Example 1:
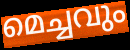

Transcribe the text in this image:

മെച്ചവും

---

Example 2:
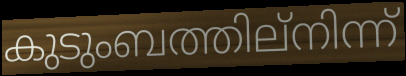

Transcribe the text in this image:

കുടുംബത്തില്നിന്ന്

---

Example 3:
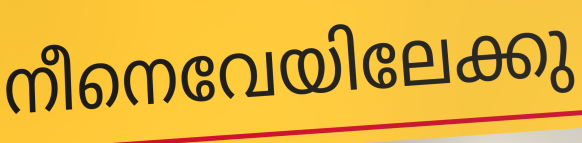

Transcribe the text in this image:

നീനെവേയിലേക്കു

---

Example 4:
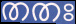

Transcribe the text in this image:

തതഃ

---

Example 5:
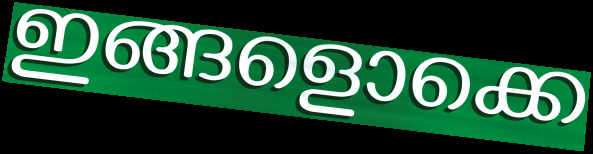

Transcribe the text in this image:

ഇങ്ങളൊക്കെ